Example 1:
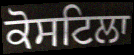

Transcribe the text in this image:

ਕੋਸਟਿਲਾ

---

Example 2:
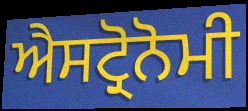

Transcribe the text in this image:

ਐਸਟ੍ਰੋਨੋਮੀ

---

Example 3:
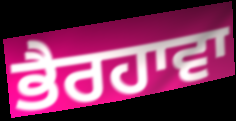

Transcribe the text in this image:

ਭੈਰਹਾਵਾ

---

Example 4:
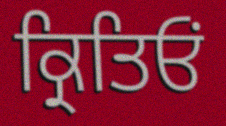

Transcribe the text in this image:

ਕ੍ਰਿਤਿਓਂ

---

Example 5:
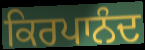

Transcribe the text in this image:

ਕਿਰਪਾਨੰਦ